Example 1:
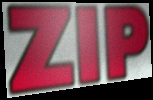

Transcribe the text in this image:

ZIP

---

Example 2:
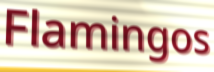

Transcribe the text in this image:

Flamingos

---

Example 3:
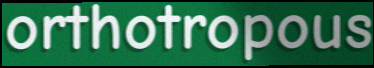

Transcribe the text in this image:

orthotropous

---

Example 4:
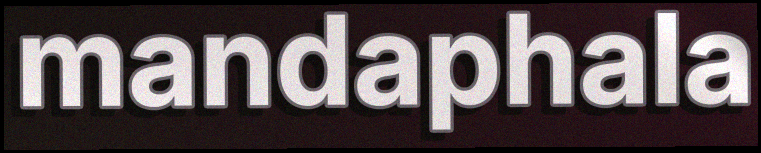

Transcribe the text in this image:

mandaphala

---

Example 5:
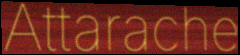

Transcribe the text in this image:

Attarache